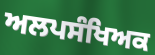
ਅਲਪਸੰਖਿਅਕ